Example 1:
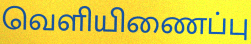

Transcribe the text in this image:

வெளியிணைப்பு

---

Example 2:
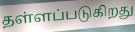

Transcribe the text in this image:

தள்ளப்படுகிறது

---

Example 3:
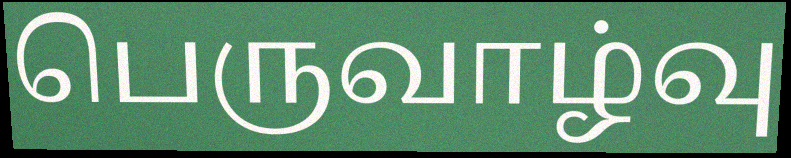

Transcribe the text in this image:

பெருவாழ்வு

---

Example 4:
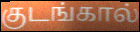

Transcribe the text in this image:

குடங்கால்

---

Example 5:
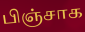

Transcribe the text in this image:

பிஞ்சாக